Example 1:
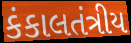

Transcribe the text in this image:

કંકાલતંત્રીય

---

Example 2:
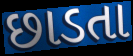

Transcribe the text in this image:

છાડતા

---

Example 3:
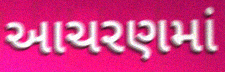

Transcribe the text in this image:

આચરણમાં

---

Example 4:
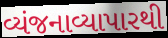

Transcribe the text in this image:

વ્યંજનાવ્યાપારથી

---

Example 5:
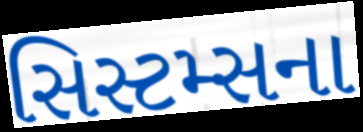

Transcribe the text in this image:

સિસ્ટમ્સના